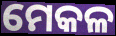
ମେକଳ